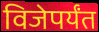
विजेपर्यंत